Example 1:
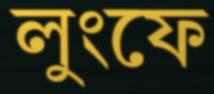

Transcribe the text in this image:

লুংফে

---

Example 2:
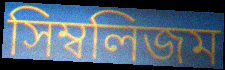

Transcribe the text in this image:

সিম্বলিজম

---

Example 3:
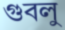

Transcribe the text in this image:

গুবলু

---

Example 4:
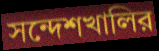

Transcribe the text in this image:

সন্দেশখালির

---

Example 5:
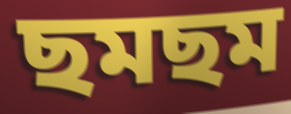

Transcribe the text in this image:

ছমছম